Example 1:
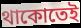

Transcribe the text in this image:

থাকোতেই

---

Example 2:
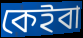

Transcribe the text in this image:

কেইবা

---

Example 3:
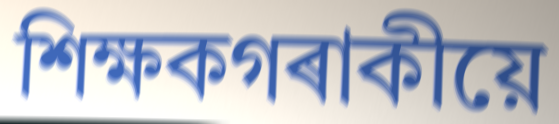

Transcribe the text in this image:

শিক্ষকগৰাকীয়ে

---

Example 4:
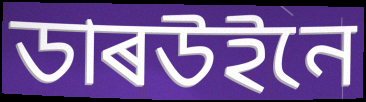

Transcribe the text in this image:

ডাৰউইনে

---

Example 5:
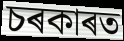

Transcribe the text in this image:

চৰকাৰত